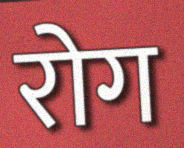
रोग